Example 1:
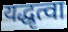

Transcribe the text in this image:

यद्धृत्वा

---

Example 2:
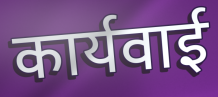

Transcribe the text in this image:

कार्यवाई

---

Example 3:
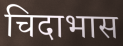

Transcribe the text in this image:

चिदाभास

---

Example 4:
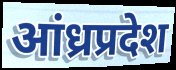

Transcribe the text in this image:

आंध्रप्रदेश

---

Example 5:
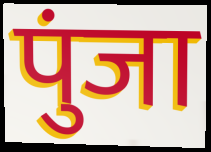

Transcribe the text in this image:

पुंजा